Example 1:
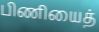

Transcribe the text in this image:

பிணியைத்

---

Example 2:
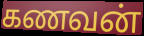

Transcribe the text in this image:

கணவன்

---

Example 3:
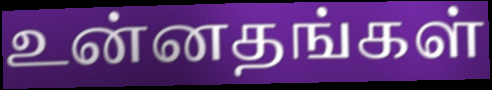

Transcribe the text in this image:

உன்னதங்கள்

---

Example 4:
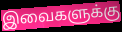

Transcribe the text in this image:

இவைகளுக்கு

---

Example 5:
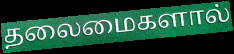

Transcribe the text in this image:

தலைமைகளால்